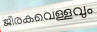
ജീരകവെള്ളവും